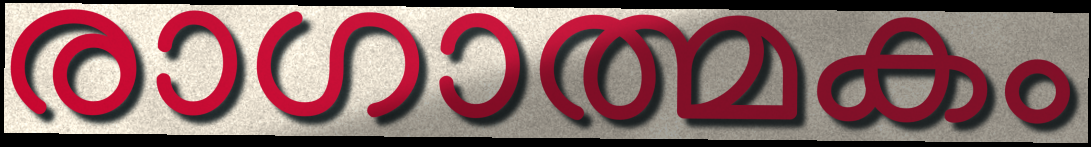
രാഗാത്മകം